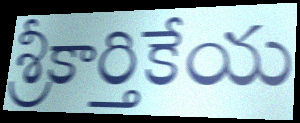
శ్రీకార్తికేయ